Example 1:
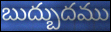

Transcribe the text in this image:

బుద్బుదము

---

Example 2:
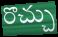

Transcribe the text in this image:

రొచ్చు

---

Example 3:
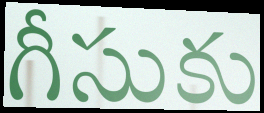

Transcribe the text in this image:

గీసుకు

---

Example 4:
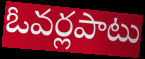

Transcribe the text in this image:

ఓవర్లపాటు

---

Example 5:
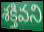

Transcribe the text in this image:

శక్తివని